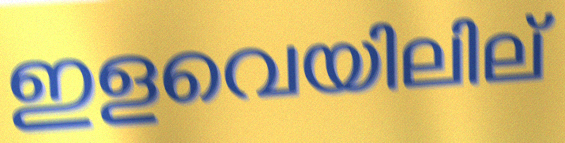
ഇളവെയിലില്